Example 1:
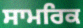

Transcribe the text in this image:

ਸਾਮਰਿਕ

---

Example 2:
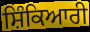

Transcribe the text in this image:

ਸ਼ਿੰਕਿਆਰੀ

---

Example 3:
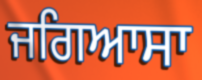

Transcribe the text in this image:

ਜਗਿਆਸਾ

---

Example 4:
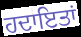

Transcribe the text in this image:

ਹਦਾਇਤਾਂ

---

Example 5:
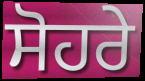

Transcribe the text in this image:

ਸੋਹਰੇ